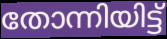
തോന്നിയിട്ട്